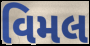
વિમલ